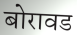
बोरावड